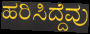
ಹರಿಸಿದ್ದೆವು